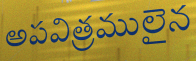
అపవిత్రములైన